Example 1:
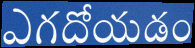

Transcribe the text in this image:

ఎగదోయడం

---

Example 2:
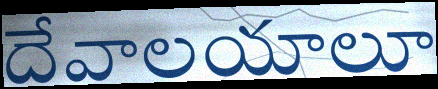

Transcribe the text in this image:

దేవాలయాలూ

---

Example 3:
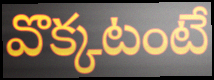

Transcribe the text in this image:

వొక్కటంటే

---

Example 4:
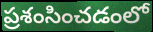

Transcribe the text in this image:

ప్రశంసించడంలో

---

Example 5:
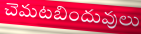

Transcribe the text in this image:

చెమటబిందువులు